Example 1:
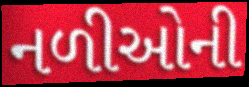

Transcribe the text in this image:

નળીઓની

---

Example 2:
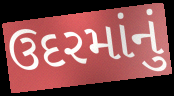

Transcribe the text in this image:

ઉદરમાંનું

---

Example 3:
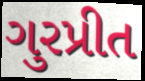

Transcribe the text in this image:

ગુરપ્રીત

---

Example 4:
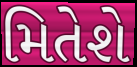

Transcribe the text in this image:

મિતેશે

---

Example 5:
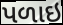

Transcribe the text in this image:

પળાઇ